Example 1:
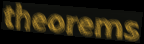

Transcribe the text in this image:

theorems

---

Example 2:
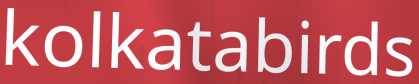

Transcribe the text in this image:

kolkatabirds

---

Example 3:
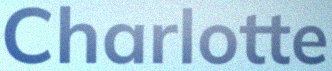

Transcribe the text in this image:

Charlotte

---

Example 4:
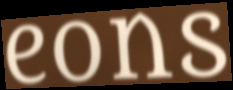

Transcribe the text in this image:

eons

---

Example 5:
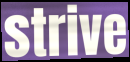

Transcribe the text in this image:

strive